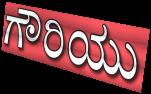
ಗೌರಿಯು